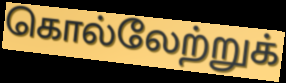
கொல்லேற்றுக்